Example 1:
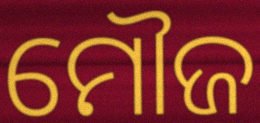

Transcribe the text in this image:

ମୌଜ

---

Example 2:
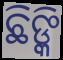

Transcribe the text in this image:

ଛିଙ୍କି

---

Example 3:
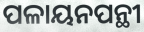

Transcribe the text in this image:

ପଳାୟନପନ୍ଥୀ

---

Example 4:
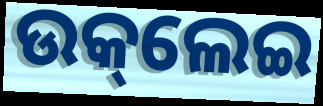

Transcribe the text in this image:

ଉକ୍‌ଲେଇ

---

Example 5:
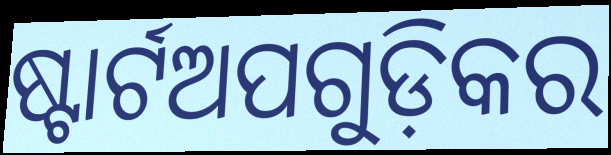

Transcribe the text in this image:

ଷ୍ଟାର୍ଟଅପଗୁଡ଼ିକର